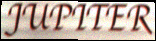
JUPITER